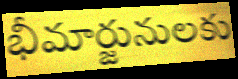
భీమార్జునులకు